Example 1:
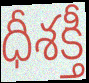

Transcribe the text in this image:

ధీశక్తీ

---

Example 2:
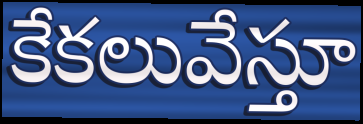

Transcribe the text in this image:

కేకలువేస్తూ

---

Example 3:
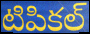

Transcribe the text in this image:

టిపికల్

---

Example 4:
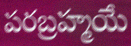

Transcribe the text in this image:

పరబ్రహ్మయే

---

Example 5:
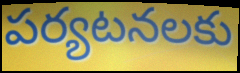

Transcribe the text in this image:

పర్యటనలకు